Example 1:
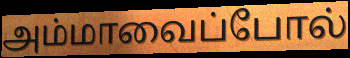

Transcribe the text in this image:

அம்மாவைப்போல்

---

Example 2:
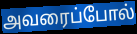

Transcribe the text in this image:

அவரைப்போல்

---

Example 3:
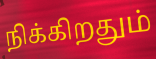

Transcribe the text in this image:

நிக்கிறதும்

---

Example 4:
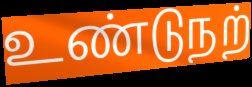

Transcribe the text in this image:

உண்டுநற்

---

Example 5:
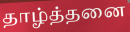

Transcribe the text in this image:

தாழ்த்தனை